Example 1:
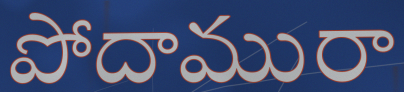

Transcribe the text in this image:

పోదామురా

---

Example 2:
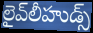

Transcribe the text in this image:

లైవ్‌లీహుడ్స్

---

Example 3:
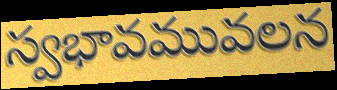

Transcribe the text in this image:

స్వభావమువలన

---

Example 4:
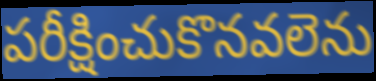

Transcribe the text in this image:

పరీక్షించుకొనవలెను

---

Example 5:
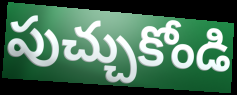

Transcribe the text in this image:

పుచ్చుకోండి